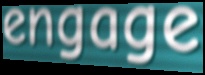
engage